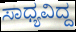
ಸಾಧ್ಯವಿದ್ದ